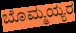
ಬೊಮ್ಮಯ್ಯರ